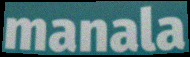
manala